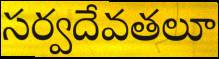
సర్వదేవతలూ